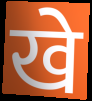
खे